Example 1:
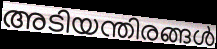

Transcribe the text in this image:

അടിയന്തിരങ്ങൾ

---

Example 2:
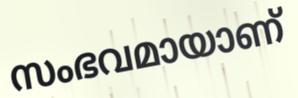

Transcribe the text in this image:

സംഭവമായാണ്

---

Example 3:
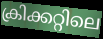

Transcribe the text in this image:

ക്രിക്കറ്റിലെ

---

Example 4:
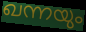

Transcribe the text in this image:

ഖന്നയും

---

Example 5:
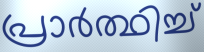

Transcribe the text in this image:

പ്രാർത്ഥിച്ച്